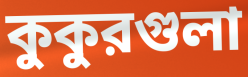
কুকুরগুলা